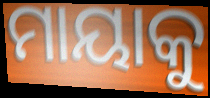
ମାୟାକୁ